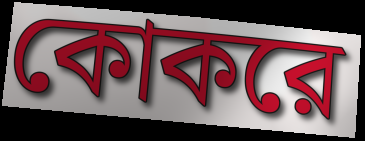
কোকরে